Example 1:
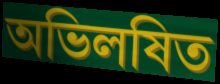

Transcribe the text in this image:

অভিলষিত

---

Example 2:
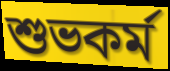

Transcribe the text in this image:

শুভকর্ম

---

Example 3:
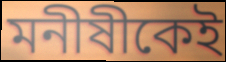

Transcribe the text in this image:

মনীষীকেই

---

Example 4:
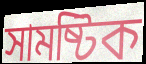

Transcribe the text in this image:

সামষ্টিক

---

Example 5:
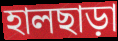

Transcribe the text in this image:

হালছাড়া